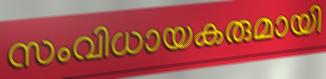
സംവിധായകരുമായി